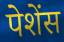
पेशेंस